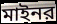
মাইনর